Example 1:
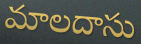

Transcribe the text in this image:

మాలదాసు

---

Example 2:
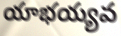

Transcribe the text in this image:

యాభయ్యవ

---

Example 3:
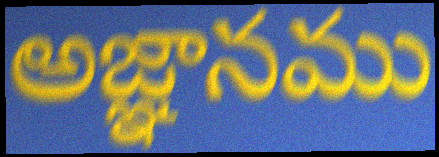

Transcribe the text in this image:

అజ్ఞానము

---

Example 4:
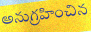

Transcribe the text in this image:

అనుగ్రహించిన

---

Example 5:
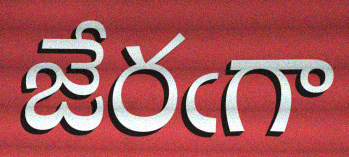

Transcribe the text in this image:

జేరఁగా